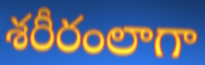
శరీరంలాగా